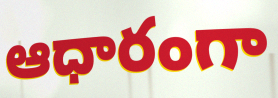
ఆధారంగా